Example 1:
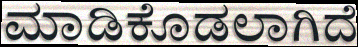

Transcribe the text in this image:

ಮಾಡಿಕೊಡಲಾಗಿದೆ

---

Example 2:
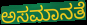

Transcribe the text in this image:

ಅಸಮಾನತೆ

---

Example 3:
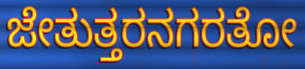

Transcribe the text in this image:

ಜೇತುತ್ತರನಗರತೋ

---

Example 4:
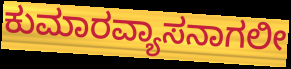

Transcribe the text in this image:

ಕುಮಾರವ್ಯಾಸನಾಗಲೀ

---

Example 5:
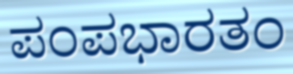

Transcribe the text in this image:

ಪಂಪಭಾರತಂ